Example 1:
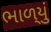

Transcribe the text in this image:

ભાળ્‌યું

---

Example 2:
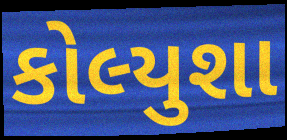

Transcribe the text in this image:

કોલ્યુશા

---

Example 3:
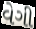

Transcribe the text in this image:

વેગી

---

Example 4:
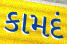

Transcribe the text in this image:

કામદં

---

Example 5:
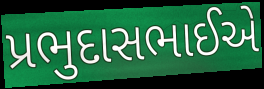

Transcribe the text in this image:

પ્રભુદાસભાઈએ